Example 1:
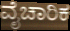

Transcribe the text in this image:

ವೈಚಾರಿಕ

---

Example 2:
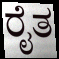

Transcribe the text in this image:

ರೈತ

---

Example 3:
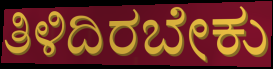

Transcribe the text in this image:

ತಿಳಿದಿರಬೇಕು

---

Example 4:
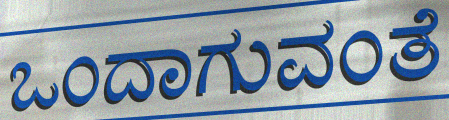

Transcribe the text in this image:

ಒಂದಾಗುವಂತೆ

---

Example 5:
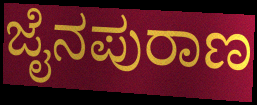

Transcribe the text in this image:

ಜೈನಪುರಾಣ